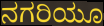
ನಗರಿಯೂ